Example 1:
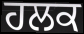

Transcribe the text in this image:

ਹਲਕ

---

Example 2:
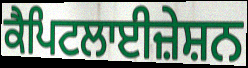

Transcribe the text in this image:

ਕੈਪਿਟਲਾਈਜ਼ੇਸ਼ਨ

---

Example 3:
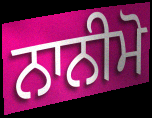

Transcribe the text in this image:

ਨਾਨੀਮੋ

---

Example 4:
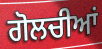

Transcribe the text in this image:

ਗੋਲਚੀਆਂ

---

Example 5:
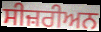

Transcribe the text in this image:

ਸੀਜ਼ਰੀਅਨ